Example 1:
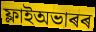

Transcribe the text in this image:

ফ্লাইঅভাৰৰ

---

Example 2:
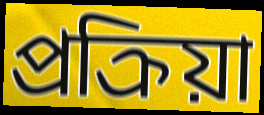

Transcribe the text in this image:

প্ৰক্ৰিয়া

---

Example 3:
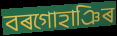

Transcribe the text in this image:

বৰগোহাঞিৰ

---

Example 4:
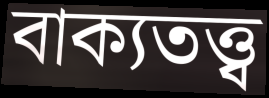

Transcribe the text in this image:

বাক্যতত্ত্ব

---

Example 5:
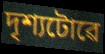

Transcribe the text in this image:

দৃশ্যটোৱে